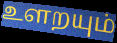
உளறயும்